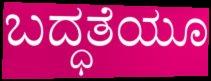
ಬದ್ಧತೆಯೂ